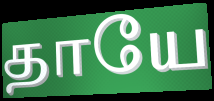
தாயே